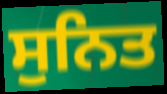
ਸੁਨਿਤ